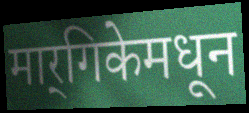
मार्गिकेमधून